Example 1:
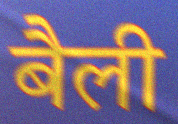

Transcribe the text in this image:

बैली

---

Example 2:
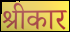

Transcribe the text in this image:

श्रीकार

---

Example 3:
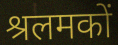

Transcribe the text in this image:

श्रलमकों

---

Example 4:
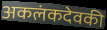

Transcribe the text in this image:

अकलंकदेवकी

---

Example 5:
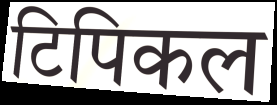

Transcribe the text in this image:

टिपिकल